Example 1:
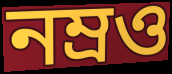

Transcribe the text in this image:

নম্রও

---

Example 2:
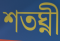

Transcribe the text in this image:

শতঘ্নী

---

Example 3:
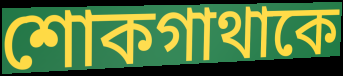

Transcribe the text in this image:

শোকগাথাকে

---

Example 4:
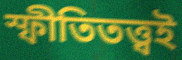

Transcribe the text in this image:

স্ফীতিতত্ত্বই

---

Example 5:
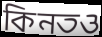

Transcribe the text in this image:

কিনতও